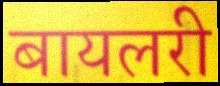
बायलरी